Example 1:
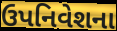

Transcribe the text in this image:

ઉપનિવેશના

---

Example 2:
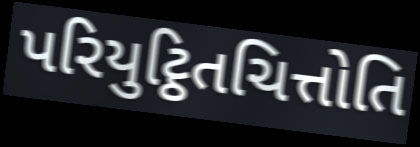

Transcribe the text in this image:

પરિયુટ્ઠિતચિત્તોતિ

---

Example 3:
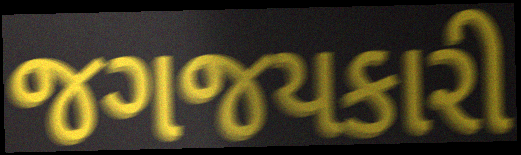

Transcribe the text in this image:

જગજયકારી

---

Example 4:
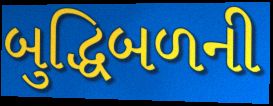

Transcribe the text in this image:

બુદ્ધિબળની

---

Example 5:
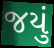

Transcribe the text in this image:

જયું